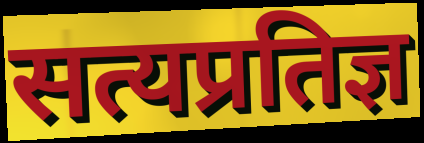
सत्यप्रतिज्ञ